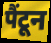
पैंटून